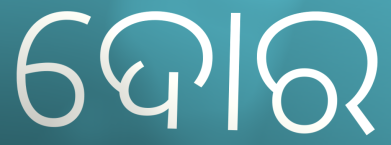
ଦୋର